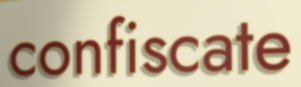
confiscate